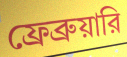
ফ্রেব্রুয়ারি